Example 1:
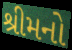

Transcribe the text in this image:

શ્રીમનો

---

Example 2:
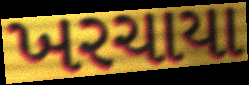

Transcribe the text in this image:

ખરચાયા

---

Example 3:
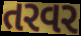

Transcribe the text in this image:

તરવર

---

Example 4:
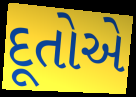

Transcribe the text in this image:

દૂતોએ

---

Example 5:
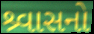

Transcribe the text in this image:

શ્ર્વાસનો